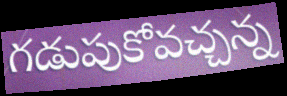
గడుపుకోవచ్చన్న